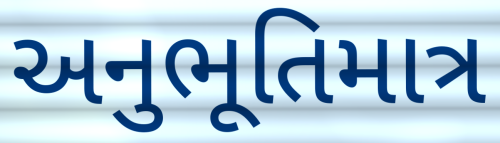
અનુભૂતિમાત્ર